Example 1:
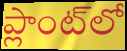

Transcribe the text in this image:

ప్లాంట్‌లో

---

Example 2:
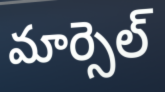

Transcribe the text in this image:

మార్సెల్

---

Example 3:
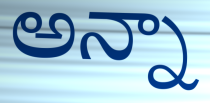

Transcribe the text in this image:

అన్నా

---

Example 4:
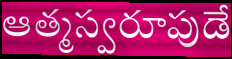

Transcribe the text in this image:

ఆత్మస్వరూపుడే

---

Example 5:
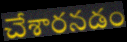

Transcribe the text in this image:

చేశారనడం